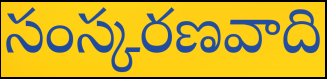
సంస్కరణవాది